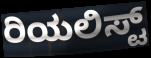
ರಿಯಲಿಸ್ಟ್